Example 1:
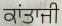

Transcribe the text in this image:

ਕਾਂਤਾਜੀ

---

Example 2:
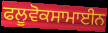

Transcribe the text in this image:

ਫਲੂਵੋਕਸਾਮਾਈਨ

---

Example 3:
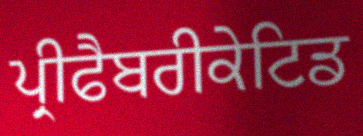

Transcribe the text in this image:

ਪ੍ਰੀਫੈਬਰੀਕੇਟਿਡ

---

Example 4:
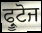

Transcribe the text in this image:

ਫ੍ਰੂਟੋਜ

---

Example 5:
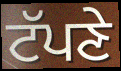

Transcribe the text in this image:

ਟੱਪਣੇ